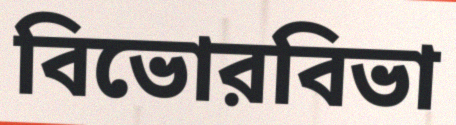
বিভোরবিভা